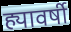
ह्यावर्षी